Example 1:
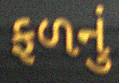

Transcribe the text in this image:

ફળનું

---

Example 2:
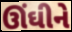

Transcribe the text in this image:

ઊંઘીને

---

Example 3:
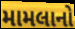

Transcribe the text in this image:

મામલાનો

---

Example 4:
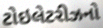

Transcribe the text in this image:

ટોઇલેટરીઝનો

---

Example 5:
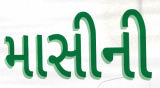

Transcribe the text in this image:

માસીની